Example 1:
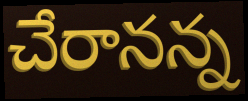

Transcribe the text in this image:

చేరానన్న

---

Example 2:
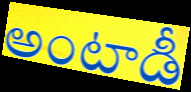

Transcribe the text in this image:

అంటాడీ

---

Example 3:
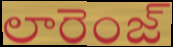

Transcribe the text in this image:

లారెంజ్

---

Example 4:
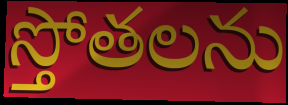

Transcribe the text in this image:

స్తోతలను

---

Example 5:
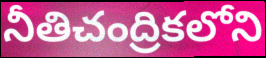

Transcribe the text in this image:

నీతిచంద్రికలోని